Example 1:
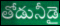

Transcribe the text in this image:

తోడునీడై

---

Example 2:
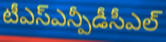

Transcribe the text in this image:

టీఎస్ఎన్పీడీసీఎల్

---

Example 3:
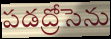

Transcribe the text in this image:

పడద్రోసెను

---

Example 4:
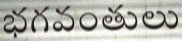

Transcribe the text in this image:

భగవంతులు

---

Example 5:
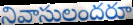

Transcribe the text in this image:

నివాసులందరూ